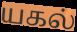
யகல்